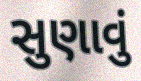
સુણાવું